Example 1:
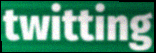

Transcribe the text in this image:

twitting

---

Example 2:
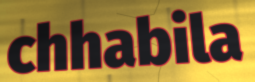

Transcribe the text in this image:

chhabila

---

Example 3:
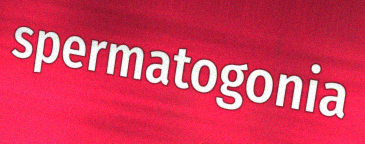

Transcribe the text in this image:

spermatogonia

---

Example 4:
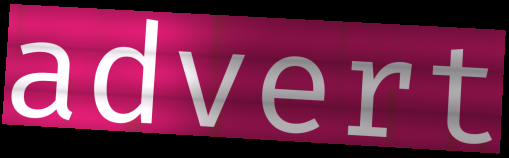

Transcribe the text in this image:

advert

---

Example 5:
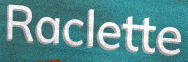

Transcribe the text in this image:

Raclette